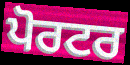
ਪੋਰਟਰ